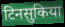
टिनसुकिया